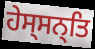
ਹੇਸ੍ਸਨ੍ਤਿ